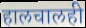
हालचालही